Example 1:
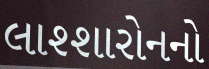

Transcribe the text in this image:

લાશ્શારોનનો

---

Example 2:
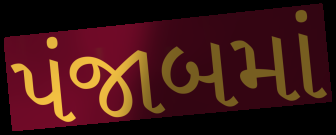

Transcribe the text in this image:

પંજાબમાં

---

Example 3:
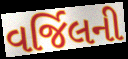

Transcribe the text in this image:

વર્જિલની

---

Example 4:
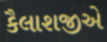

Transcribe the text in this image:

કૈલાશજીએ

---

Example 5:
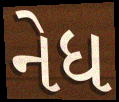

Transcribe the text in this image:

નેધ